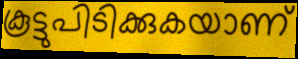
കൂട്ടുപിടിക്കുകയാണ്